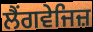
ਲੈਂਗਵੇਜਿਜ਼